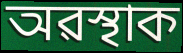
অৱস্থাক